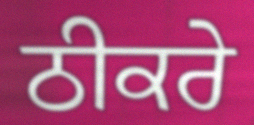
ਠੀਕਰੇ